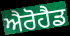
ਐਰੋਹੈਡ